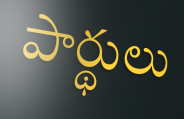
పార్థులు